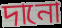
দানো